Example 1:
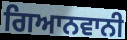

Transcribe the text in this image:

ਗਿਆਨਵਾਨੀ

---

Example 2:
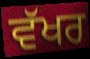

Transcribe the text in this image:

ਵੱਖਰ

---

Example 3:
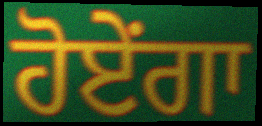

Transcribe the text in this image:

ਹੋਏਂਗਾ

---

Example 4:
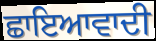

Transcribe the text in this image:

ਛਾਇਆਵਾਦੀ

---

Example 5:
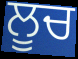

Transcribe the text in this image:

ਲੂਚ